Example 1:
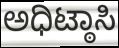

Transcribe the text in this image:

ಅಧಿಟ್ಠಾಸಿ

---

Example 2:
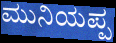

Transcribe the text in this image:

ಮುನಿಯಪ್ಪ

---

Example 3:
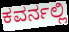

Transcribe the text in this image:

ಕವರ್ನಲ್ಲಿ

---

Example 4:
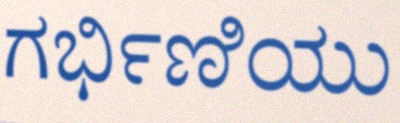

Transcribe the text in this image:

ಗರ್ಭಿಣಿಯು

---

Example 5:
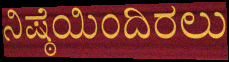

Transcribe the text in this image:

ನಿಷ್ಠೆಯಿಂದಿರಲು